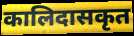
कालिदासकृत